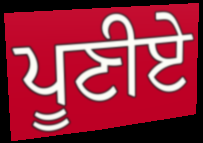
ਪੂਣੀਏ